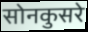
सोनकुसरे